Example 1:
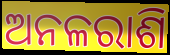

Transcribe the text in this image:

ଅନଳରାଶି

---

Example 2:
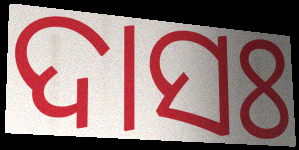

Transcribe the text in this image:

ଦାସଃ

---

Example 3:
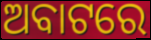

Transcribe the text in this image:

ଅବାଟରେ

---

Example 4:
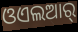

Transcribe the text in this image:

ଓଏଲଆର୍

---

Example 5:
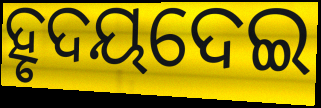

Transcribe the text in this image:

ହୃଦୟଦେଇ